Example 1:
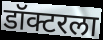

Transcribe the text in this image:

डॉक्टरला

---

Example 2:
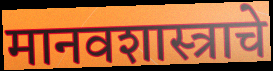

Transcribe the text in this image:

मानवशास्त्राचे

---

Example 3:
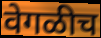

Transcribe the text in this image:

वेगळीच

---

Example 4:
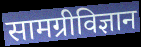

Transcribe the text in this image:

सामग्रीविज्ञान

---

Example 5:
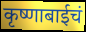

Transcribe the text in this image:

कृष्णाबाईचं